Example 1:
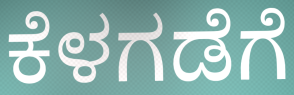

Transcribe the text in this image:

ಕೆಳಗಡೆಗೆ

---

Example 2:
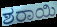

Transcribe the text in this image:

ಶರಾಯಿ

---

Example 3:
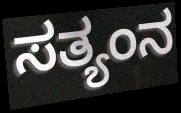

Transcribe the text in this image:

ಸತ್ಯಂನ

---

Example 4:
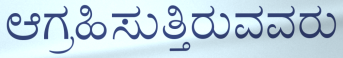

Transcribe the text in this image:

ಆಗ್ರಹಿಸುತ್ತಿರುವವರು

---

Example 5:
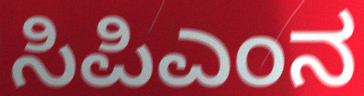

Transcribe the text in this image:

ಸಿಪಿಎಂನ